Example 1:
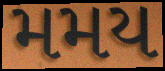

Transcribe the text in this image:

મમય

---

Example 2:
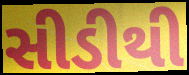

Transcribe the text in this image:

સીડીથી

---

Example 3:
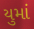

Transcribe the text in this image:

યુમાં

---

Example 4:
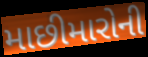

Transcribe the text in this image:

માછીમારોની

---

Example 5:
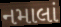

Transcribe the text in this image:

નમાલાં